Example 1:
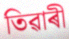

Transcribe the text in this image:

তিৱাৰী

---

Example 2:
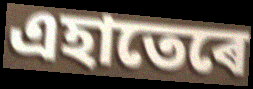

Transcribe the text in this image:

এহাতেৰে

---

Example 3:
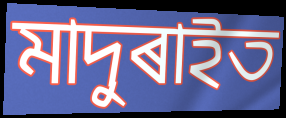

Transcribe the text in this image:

মাদুৰাইত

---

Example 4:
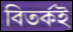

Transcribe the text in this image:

বিতৰ্কই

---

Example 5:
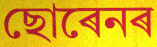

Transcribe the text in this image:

ছোৰেনৰ